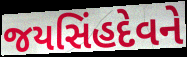
જયસિંહદેવને